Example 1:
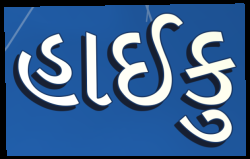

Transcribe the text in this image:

હાઈકુ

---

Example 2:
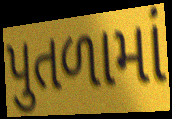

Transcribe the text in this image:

પુતળામાં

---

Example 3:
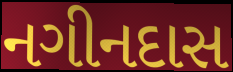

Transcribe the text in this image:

નગીનદાસ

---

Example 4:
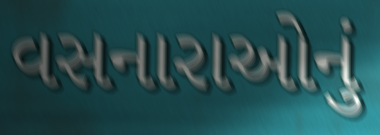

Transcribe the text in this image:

વસનારાઓનું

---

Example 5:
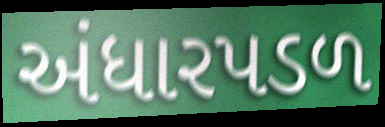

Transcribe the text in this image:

અંધારપડળ